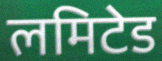
लमिटेड